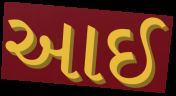
આઈ